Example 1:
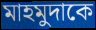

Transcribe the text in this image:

মাহমুদাকে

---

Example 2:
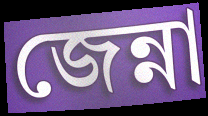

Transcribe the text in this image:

জেন্না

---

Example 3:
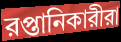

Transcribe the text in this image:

রপ্তানিকারীরা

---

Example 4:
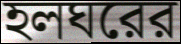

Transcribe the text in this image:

হলঘরের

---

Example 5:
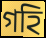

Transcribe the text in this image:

গহি